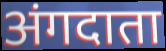
अंगदाता